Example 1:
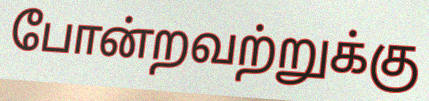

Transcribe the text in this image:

போன்றவற்றுக்கு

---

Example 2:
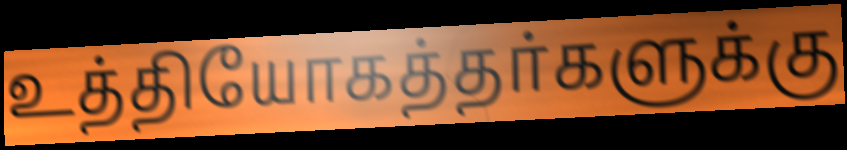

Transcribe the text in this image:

உத்தியோகத்தர்களுக்கு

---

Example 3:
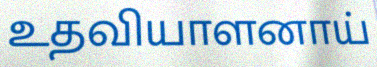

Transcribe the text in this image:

உதவியாளனாய்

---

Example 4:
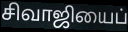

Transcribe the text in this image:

சிவாஜியைப்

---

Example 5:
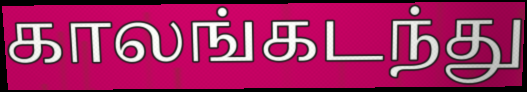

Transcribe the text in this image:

காலங்கடந்து